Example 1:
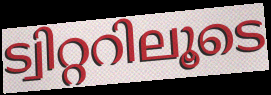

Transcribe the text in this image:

ട്വിറ്ററിലൂടെ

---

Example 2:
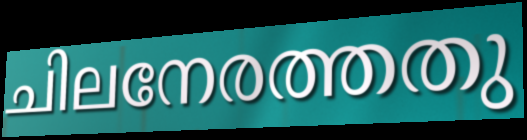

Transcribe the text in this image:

ചിലനേരത്തതു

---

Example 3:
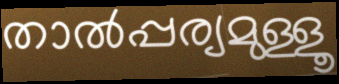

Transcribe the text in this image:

താൽപ്പര്യമുള്ളൂ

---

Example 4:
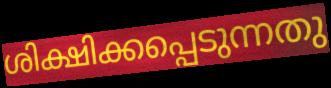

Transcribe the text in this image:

ശിക്ഷിക്കപ്പെടുന്നതു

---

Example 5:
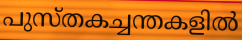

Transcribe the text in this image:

പുസ്തകച്ചന്തകളിൽ